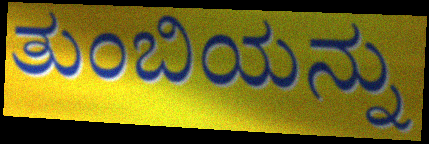
ತುಂಬಿಯನ್ನು